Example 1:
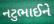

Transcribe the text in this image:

નટુભાઈને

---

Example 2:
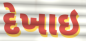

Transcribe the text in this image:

દેખાઇ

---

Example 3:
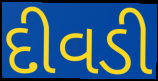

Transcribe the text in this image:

દીવડી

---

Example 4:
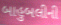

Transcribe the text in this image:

બાહુબલીની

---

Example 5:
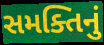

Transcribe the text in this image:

સમક્તિનું